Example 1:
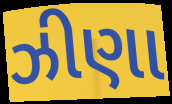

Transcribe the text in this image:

ઝીણા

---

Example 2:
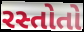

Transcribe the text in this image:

રસ્તોતો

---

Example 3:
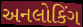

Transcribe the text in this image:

અનલોકિંગ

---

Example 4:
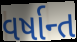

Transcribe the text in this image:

વર્ષાન્ત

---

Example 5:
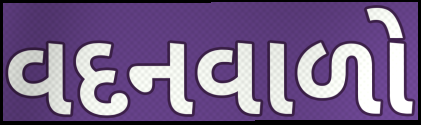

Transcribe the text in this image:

વદનવાળો